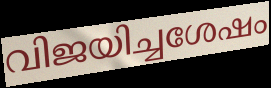
വിജയിച്ചശേഷം